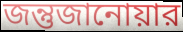
জন্তুজানোয়ার